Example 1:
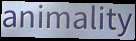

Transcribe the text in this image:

animality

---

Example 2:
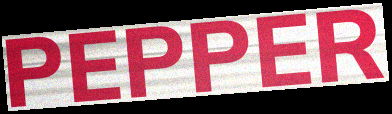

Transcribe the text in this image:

PEPPER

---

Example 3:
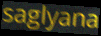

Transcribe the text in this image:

saglyana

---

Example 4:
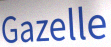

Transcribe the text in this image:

Gazelle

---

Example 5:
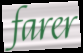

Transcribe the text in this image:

farer